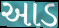
આડ